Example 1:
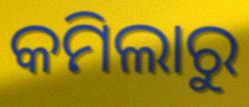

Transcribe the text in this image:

କମିଲାରୁ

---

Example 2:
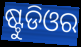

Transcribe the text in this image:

ଷ୍ଟୁଡିଓର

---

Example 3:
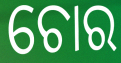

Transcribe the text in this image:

ଚୋର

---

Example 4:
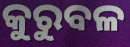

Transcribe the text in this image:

କୁରୁବଳ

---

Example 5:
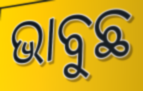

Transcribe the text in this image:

ଭାବୁଛ